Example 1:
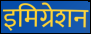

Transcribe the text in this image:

इमिग्रेशन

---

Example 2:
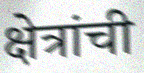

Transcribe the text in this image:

क्षेत्रांची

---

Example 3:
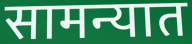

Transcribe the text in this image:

सामन्यात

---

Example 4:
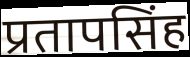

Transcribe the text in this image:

प्रतापसिंह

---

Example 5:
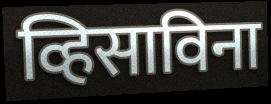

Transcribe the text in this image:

व्हिसाविना